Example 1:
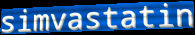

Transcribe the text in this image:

simvastatin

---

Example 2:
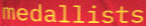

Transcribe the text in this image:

medallists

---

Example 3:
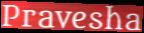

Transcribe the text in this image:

Pravesha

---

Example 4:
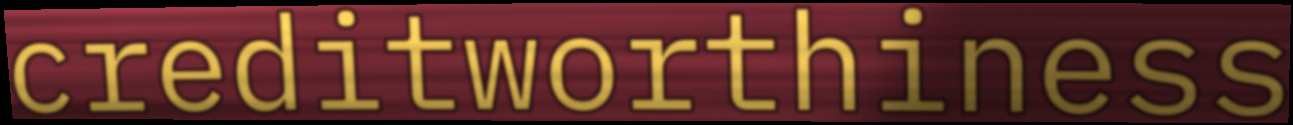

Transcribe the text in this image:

creditworthiness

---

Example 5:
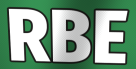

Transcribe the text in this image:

RBE